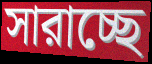
সারাচ্ছে